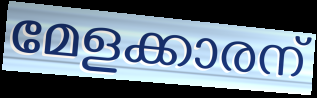
മേളക്കാരന്